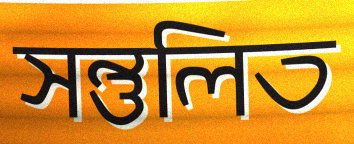
সন্তুলিত